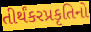
તીર્થંકરપ્રકૃતિનો